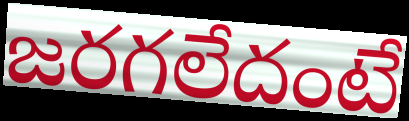
జరగలేదంటే